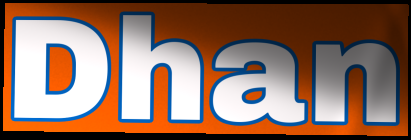
Dhan